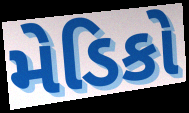
મેડિકો